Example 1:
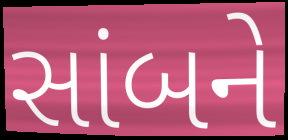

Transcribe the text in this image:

સાંબને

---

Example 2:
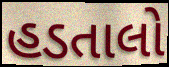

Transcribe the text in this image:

હડતાલો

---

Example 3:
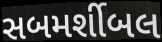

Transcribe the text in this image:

સબમર્શીબલ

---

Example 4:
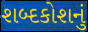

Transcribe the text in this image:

શબ્દકોશનું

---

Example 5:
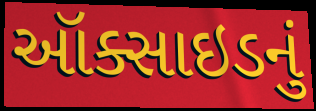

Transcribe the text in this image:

ઑક્સાઇડનું